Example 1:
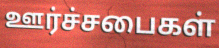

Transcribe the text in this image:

ஊர்ச்சபைகள்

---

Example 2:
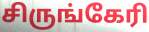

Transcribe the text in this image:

சிருங்கேரி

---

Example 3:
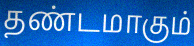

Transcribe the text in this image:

தண்டமாகும்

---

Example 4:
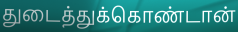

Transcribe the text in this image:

துடைத்துக்கொண்டான்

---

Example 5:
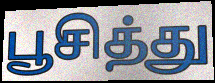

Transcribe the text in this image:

பூசித்து